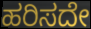
ಹರಿಸದೇ